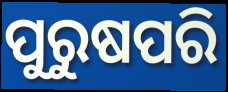
ପୁରୁଷପରି